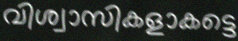
വിശ്വാസികളാകട്ടെ